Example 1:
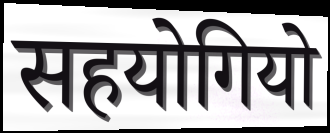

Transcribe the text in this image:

सहयोगियो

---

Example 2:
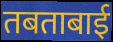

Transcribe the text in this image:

तबताबाई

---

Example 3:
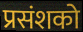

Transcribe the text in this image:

प्रसंशको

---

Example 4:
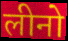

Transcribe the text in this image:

लीनो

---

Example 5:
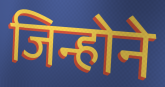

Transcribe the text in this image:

जिन्होने